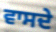
ਵਾਸਦੇ